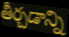
తీర్చడాన్ని